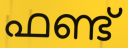
ഫണ്ട്